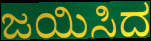
ಜಯಿಸಿದ